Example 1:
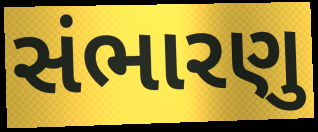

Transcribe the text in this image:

સંભારણુ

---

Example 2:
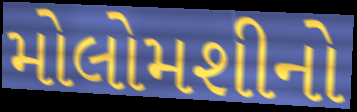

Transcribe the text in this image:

મોલોમશીનો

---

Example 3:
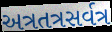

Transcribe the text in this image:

અત્રતત્રસર્વત્ર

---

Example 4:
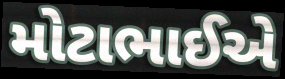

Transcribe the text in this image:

મોટાભાઈએ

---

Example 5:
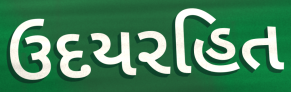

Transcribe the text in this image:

ઉદયરહિત